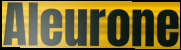
Aleurone